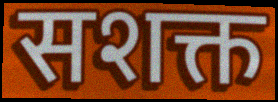
सशक्त